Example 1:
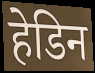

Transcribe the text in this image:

हेडिन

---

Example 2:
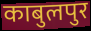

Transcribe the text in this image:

काबुलपुर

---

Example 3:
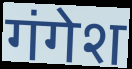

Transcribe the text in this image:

गंगेश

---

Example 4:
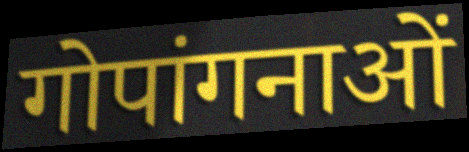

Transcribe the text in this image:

गोपांगनाओं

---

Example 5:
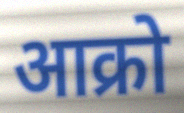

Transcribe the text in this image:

आक्रो